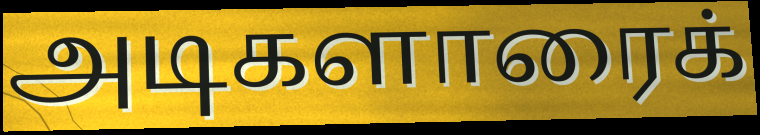
அடிகளாரைக்